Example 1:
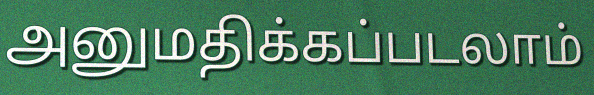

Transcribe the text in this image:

அனுமதிக்கப்படலாம்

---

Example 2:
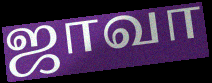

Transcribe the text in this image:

ஜாவா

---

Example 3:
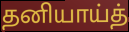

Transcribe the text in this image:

தனியாய்த்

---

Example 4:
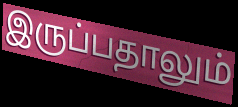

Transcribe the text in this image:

இருப்பதாலும்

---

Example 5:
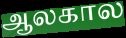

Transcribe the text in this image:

ஆலகால